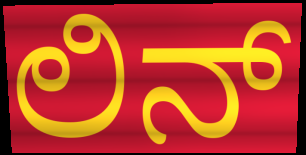
ಲಿನ್